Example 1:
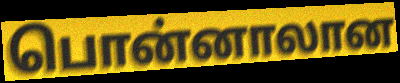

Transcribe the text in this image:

பொன்னாலான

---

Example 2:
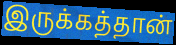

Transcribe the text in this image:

இருக்கத்தான்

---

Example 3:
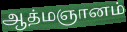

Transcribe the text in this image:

ஆத்மஞானம்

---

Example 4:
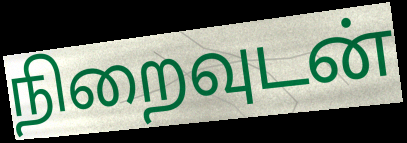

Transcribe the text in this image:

நிறைவுடன்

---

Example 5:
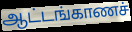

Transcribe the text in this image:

ஆட்டங்காணச்